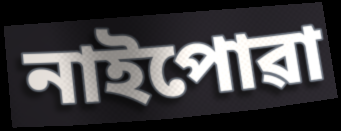
নাইপোৱা